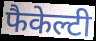
फैकेल्टी